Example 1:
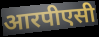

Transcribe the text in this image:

आरपीएसी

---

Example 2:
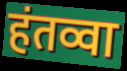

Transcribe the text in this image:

हंतव्वा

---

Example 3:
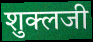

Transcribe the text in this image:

शुक्‍लजी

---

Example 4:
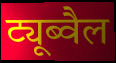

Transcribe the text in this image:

ट्यूब्वैल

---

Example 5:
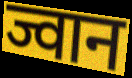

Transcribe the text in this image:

ज्वान